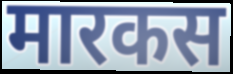
मारकस